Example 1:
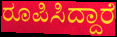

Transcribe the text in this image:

ರೂಪಿಸಿದ್ದಾರೆ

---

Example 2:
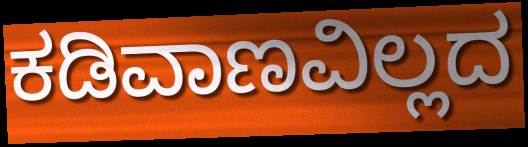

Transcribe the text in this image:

ಕಡಿವಾಣವಿಲ್ಲದ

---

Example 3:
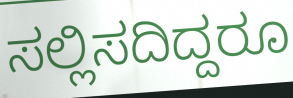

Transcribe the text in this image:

ಸಲ್ಲಿಸದಿದ್ದರೂ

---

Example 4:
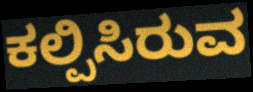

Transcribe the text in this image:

ಕಲ್ಪಿಸಿರುವ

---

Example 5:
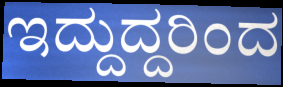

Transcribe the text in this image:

ಇದ್ದುದ್ದರಿಂದ